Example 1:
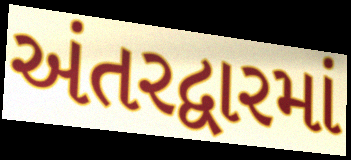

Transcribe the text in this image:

અંતરદ્વારમાં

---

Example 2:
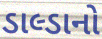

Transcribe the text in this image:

ડાલ્ડાનો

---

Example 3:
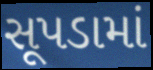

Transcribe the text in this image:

સૂપડામાં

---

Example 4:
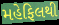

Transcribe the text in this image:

મહેફિલથી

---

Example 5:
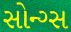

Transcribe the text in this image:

સોન્ગ્સ